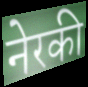
नेरकी